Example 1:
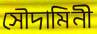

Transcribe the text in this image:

সৌদামিনী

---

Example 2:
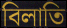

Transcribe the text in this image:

বিলাতি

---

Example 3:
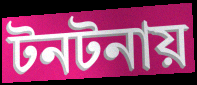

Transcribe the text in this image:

টনটনায়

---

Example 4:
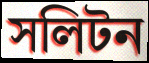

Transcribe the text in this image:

সলিটন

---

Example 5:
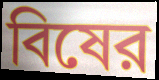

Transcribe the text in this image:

বিষের